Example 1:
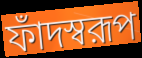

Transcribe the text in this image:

ফাঁদস্বরূপ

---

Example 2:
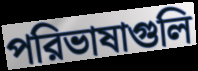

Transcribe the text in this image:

পরিভাষাগুলি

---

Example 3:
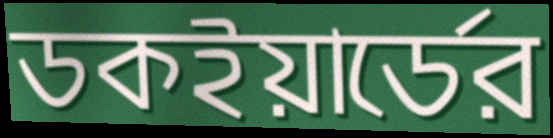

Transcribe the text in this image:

ডকইয়ার্ডের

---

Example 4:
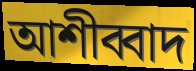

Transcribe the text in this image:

আশীব্বাদ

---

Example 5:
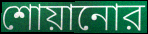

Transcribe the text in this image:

শোয়ানোর